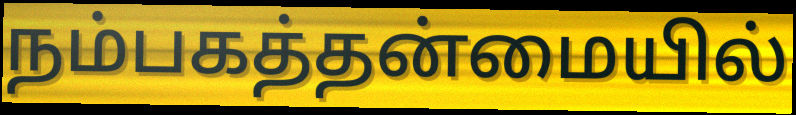
நம்பகத்தன்மையில்